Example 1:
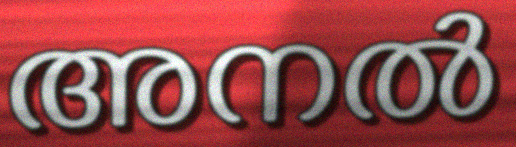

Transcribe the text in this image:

അനൽ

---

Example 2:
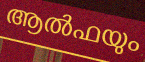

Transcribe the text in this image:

ആൽഫയും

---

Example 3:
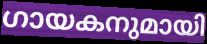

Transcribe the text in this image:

ഗായകനുമായി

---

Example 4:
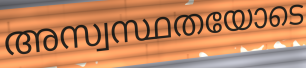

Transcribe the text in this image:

അസ്വസ്ഥതയോടെ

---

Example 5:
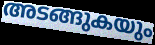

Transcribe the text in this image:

അടങ്ങുകയും